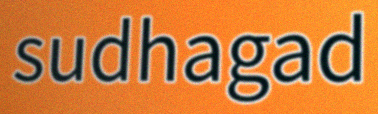
sudhagad